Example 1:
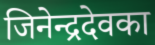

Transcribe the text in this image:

जिनेन्द्रदेवका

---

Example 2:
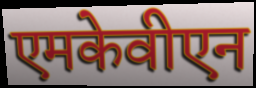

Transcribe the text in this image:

एमकेवीएन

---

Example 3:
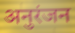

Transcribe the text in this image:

अनुरंजन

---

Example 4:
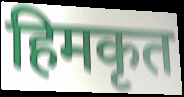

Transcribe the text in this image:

हिमकृत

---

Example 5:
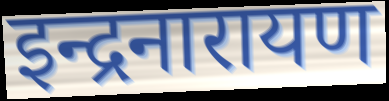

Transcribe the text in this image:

इन्द्रनारायण